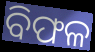
ବିଫଳ